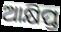
ଆକ୍ଷିପ୍ତ